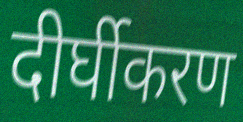
दीर्घीकरण